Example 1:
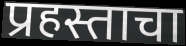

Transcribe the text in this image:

प्रहस्ताचा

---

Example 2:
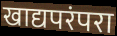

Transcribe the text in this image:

खाद्यपरंपरा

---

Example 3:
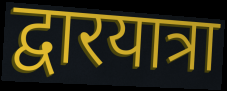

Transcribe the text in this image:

द्वारयात्रा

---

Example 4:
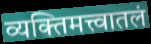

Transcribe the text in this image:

व्यक्तिमत्त्वातलं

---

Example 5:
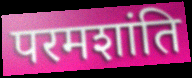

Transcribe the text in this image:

परमशांति